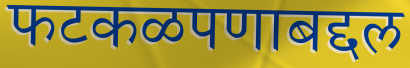
फटकळपणाबद्दल